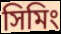
সিমিং